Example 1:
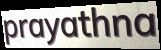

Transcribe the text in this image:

prayathna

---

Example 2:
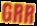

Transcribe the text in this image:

GRR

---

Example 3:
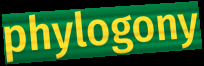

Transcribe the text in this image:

phylogony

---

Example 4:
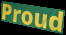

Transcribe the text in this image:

Proud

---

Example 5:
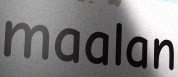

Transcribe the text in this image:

maalan